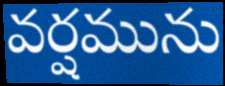
వర్షమును